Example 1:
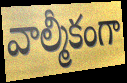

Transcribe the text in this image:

వాల్మీకంగా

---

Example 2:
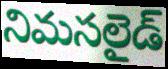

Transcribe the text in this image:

నిమసలైడ్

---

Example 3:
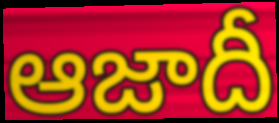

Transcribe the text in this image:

ఆజాదీ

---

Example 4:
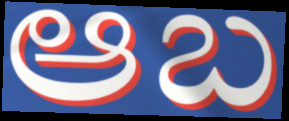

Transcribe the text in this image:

ఆబ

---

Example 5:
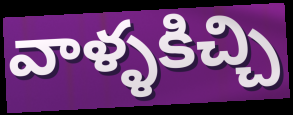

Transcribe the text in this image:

వాళ్ళకిచ్చి